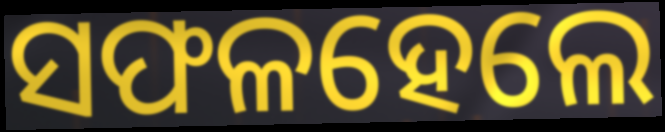
ସଫଳହେଲେ